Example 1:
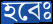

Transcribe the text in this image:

হবেঃ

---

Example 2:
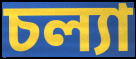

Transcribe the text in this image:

চল্যা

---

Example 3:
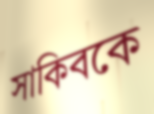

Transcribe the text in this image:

সাকিবকে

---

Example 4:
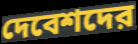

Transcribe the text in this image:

দেবেশদের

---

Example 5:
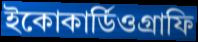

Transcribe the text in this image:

ইকোকার্ডিওগ্রাফি